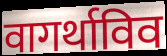
वागर्थाविव